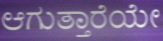
ಆಗುತ್ತಾರೆಯೇ